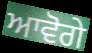
ਆਵੋਗੇ